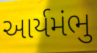
આર્યમંભુ